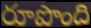
రూపొంది